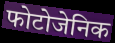
फोटोजेनिक